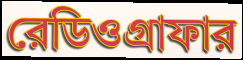
রেডিওগ্রাফার